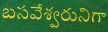
బసవేశ్వరునిగా